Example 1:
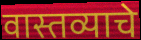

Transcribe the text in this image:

वास्तव्याचे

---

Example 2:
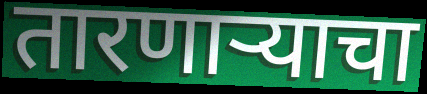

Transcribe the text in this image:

तारणाऱ्याचा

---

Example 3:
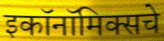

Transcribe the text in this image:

इकॉनॉमिक्सचे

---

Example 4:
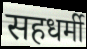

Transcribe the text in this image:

सहधर्मी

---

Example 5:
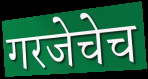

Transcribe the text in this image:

गरजेचेच